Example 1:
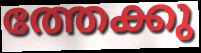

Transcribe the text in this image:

ത്തേക്കു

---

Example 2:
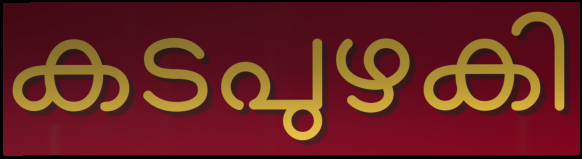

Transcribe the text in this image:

കടപുഴകി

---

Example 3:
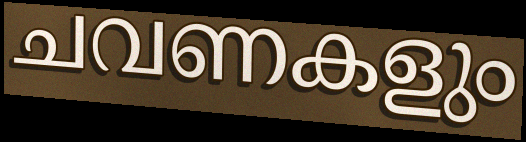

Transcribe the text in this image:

ചവണകളും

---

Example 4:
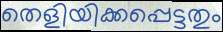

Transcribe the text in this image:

തെളിയിക്കപ്പെട്ടതും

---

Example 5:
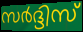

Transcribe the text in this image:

സർദ്ദിസ്